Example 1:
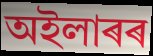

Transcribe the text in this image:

অইলাৰৰ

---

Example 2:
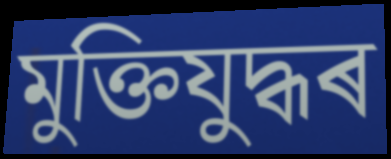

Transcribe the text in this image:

মুক্তিযুদ্ধৰ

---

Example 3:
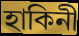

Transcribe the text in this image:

হাকিনী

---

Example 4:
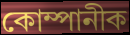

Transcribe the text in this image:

কোম্পানীক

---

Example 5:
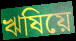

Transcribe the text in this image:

ঋষিয়ে